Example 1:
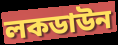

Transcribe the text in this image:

লকডাউন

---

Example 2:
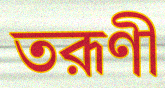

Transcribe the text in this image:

তরূণী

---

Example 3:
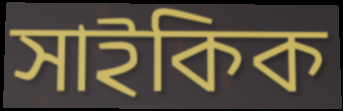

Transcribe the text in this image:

সাইকিক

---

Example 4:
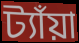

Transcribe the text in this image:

ট্যাঁয়া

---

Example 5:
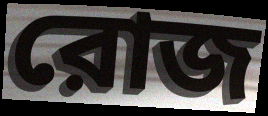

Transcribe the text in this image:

রোজ